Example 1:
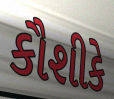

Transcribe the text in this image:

કૌશીકે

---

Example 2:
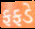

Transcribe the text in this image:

ફફડે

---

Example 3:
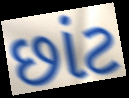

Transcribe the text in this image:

છાંટ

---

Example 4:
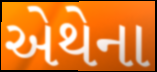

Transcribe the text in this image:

એથેના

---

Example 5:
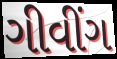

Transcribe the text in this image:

ગીવીંગ